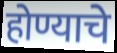
होण्याचे